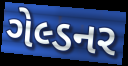
ગેલ્ડનર